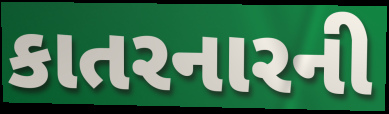
કાતરનારની